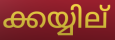
ക്കയ്യില്